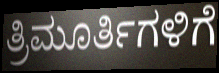
ತ್ರಿಮೂರ್ತಿಗಳಿಗೆ